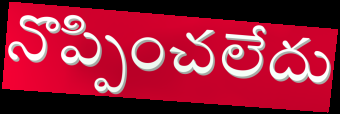
నొప్పించలేదు